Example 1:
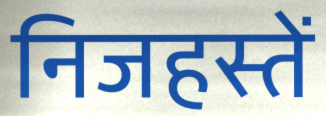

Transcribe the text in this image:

निजहस्तें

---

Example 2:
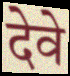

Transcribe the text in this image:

देवे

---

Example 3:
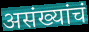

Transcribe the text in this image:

असंख्यांचं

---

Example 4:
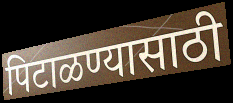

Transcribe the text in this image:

पिटाळण्यासाठी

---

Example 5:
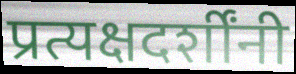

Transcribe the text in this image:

प्रत्यक्षदर्शींनी